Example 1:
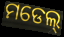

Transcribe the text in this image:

ମଡେଲ୍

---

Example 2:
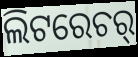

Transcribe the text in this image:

ଲିଟରେଚର୍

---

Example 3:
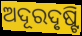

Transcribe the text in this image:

ଅଦୂରଦୃଷ୍ଟି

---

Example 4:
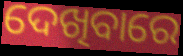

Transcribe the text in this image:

ଦେଖିବାରେ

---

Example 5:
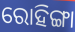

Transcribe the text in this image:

ରୋହିଙ୍ଗା